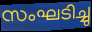
സംഘടിച്ചു